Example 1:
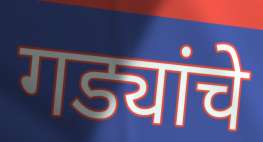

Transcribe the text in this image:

गड्यांचे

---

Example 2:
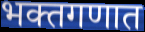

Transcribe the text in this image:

भक्तगणात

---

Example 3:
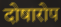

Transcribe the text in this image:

दोषारोप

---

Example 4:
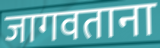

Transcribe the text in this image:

जागवताना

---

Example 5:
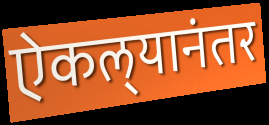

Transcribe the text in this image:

ऐकल्यानंतर